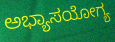
ಅಭ್ಯಾಸಯೋಗ್ಯ